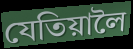
যেতিয়ালৈ